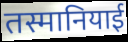
तस्मानियाई